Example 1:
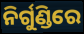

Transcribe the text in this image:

ନିର୍ଗୁଣ୍ଡିରେ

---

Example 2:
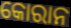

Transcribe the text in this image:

କୋରାନ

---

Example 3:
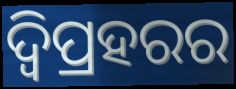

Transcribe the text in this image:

ଦ୍ବିପ୍ରହରର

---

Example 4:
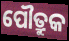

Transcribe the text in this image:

ପୌତ୍ରୁକ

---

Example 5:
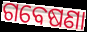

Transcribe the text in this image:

ଗବେଷଣା